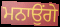
ਮਨਾਉਂਗੇ